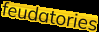
feudatories